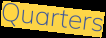
Quarters